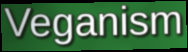
Veganism